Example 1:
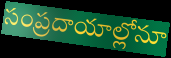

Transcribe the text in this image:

సంప్రదాయాల్లోనూ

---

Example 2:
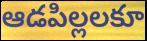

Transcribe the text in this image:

ఆడపిల్లలకూ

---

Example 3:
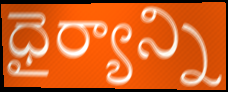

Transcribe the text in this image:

ధైర్యాన్ని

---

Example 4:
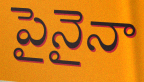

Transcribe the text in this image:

పైనైనా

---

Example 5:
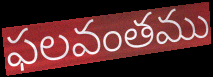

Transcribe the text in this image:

ఫలవంతము